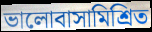
ভালোবাসামিশ্রিত